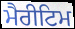
ਮੈਰੀਟਿਮ